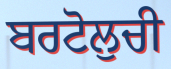
ਬਰਟੋਲੁਚੀ